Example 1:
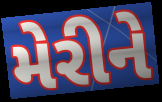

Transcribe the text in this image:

મેરીને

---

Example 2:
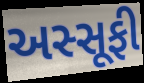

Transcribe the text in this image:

અસ્સૂફી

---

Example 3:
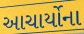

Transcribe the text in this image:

આચાર્યોના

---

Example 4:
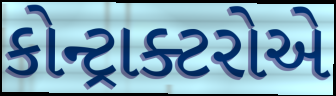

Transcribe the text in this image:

કોન્ટ્રાક્ટરોએ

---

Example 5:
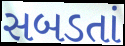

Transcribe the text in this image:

સબડતાં